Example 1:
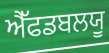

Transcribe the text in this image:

ਐੱਫਡਬਲਯੂ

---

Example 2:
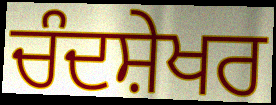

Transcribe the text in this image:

ਚੰਦਸ਼ੇਖਰ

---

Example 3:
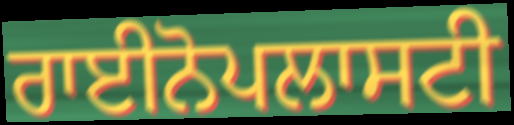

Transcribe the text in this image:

ਰਾਈਨੋਪਲਾਸਟੀ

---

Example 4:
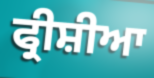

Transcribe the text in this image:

ਫ੍ਰੀਸ਼ੀਆ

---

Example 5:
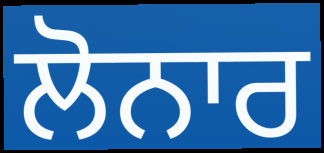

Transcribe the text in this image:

ਲੋਨਾਰ